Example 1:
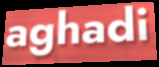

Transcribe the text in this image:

aghadi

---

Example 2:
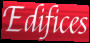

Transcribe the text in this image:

Edifices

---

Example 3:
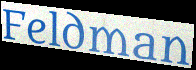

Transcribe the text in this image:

Feldman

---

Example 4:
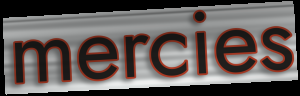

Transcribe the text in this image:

mercies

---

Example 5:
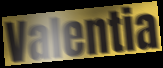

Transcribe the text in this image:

Valentia